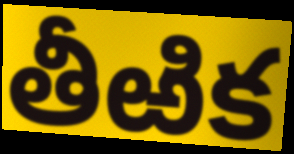
తీఱిక